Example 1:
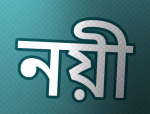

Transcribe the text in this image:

নয়ী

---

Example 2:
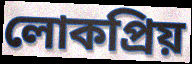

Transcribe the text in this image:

লোকপ্ৰিয়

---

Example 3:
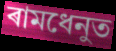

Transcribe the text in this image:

ৰামধেনুত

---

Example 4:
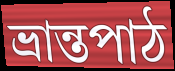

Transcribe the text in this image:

ভ্ৰান্তপাঠ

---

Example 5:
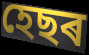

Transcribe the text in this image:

হেছৰ